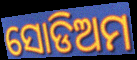
ସୋଡିଅମ